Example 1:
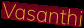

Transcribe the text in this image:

Vasanthi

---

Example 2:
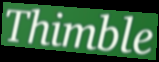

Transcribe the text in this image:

Thimble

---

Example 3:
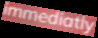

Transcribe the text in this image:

immediatly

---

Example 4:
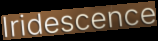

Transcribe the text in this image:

Iridescence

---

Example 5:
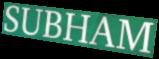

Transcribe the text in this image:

SUBHAM